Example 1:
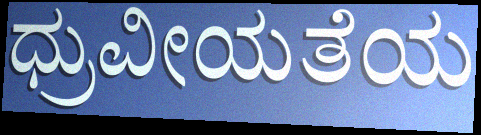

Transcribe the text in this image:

ಧ್ರುವೀಯತೆಯ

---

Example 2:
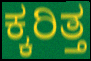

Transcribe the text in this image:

ಕ್ಕರಿತ್ತ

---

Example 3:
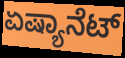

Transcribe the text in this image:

ಏಷ್ಯಾನೆಟ್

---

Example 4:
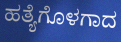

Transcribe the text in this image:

ಹತ್ಯೆಗೊಳಗಾದ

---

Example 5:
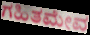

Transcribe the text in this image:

ಗಹಿತಮೇವ